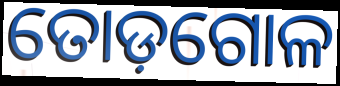
ତୋଡ଼ଗୋଳ